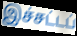
இச்சட்டப்